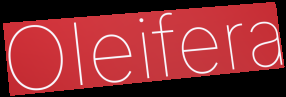
Oleifera